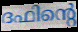
ദഫിന്റെ